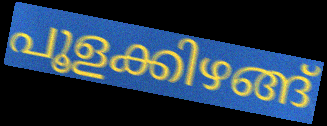
പൂളക്കിഴങ്ങ്